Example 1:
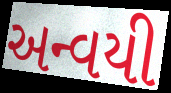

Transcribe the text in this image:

અન્વયી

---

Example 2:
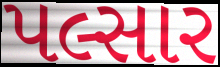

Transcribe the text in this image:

પલ્સાર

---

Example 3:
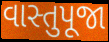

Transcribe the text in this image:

વાસ્તુપૂજા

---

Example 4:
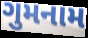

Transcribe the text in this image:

ગુમનામ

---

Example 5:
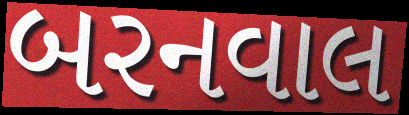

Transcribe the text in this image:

બરનવાલ